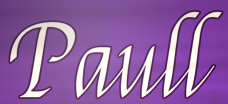
Paull